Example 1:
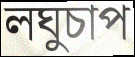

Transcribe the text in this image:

লঘুচাপ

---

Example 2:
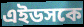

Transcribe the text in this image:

এইডসকে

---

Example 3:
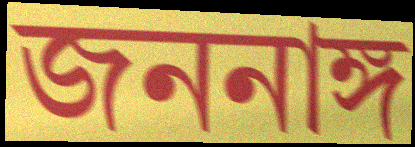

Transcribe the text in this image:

জননাঙ্গ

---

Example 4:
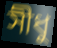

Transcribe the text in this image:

সীধু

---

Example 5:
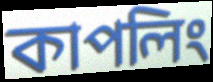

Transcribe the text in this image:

কাপলিং